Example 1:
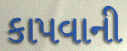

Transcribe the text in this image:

કાપવાની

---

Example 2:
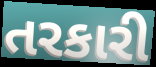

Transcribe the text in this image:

તરકારી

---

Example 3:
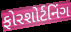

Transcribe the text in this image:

ફોરશોર્ટનિંગ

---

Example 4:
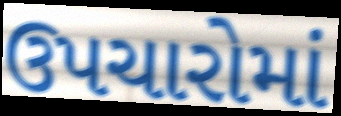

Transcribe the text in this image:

ઉપચારોમાં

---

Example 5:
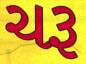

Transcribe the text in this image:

ચરૂ